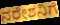
ನರೇಶನಿಗೆ